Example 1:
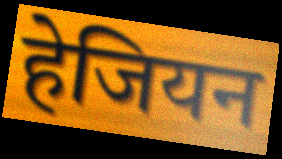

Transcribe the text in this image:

हेजियन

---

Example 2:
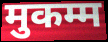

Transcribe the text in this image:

मुकम्म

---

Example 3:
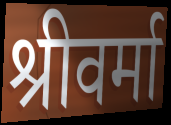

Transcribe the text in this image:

श्रीवर्मा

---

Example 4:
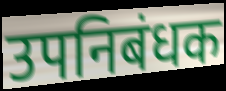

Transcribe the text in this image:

उपनिबंधक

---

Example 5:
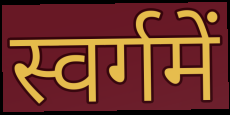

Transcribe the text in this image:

स्वर्गमें